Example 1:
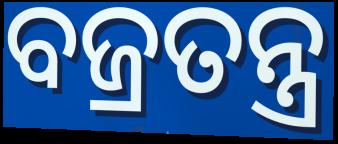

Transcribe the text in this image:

ବଜ୍ରତନ୍ତ୍ର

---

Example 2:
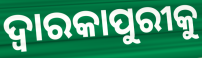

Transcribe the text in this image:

ଦ୍ୱାରକାପୁରୀକୁ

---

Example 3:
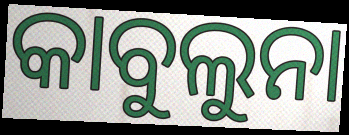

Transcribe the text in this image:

କାବୁଲୁନା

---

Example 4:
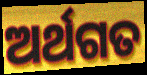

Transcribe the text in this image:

ଅର୍ଥଗତ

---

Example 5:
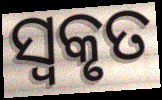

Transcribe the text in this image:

ସ୍ୱକୃତ